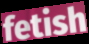
fetish